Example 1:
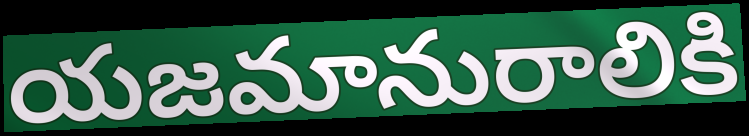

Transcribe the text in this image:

యజమానురాలికి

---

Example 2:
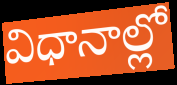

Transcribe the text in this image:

విధానాల్లో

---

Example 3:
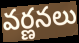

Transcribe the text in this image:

వర్ణనలు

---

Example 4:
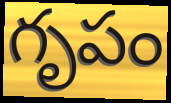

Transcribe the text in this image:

గృపం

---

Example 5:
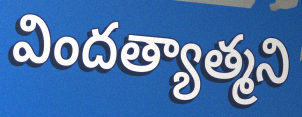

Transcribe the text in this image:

విందత్యాత్మని